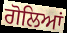
ਗੋਲਿਆਂ